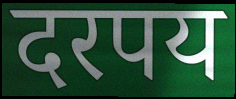
दरपय